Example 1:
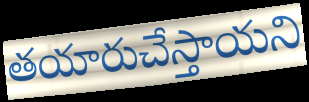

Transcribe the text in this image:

తయారుచేస్తాయని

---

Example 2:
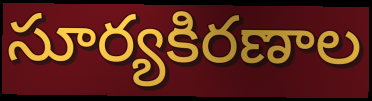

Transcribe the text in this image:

సూర్యకిరణాల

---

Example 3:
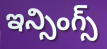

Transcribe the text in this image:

ఇన్సింగ్స్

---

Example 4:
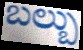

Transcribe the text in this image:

బల్బు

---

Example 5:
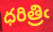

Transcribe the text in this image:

ధరిత్రిఁ